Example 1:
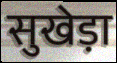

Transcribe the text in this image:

सुखेड़ा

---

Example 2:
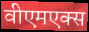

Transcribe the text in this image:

वीएमएक्स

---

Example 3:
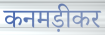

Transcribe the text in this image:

कनमड़ीकर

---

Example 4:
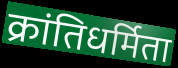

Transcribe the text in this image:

क्रांतिधर्मिता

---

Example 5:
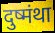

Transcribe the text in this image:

दुष्मंथा